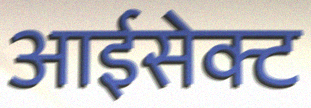
आईसेक्ट